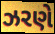
ઝરણે